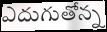
ఎదుగుతోన్న